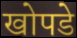
खोपडे